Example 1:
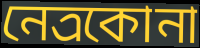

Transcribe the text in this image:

নেত্রকোনা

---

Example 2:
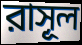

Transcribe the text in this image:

রাসূল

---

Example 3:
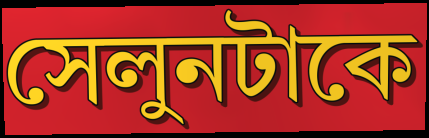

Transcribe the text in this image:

সেলুনটাকে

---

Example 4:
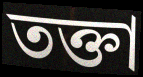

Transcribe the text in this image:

তক্তা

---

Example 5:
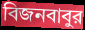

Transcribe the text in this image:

বিজনবাবুর